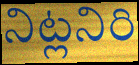
నిట్లనిరి